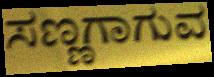
ಸಣ್ಣಗಾಗುವ